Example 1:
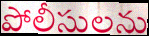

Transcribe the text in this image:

పోలీసులను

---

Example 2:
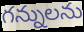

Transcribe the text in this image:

గన్నులను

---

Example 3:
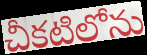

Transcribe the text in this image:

చీకటిలోను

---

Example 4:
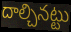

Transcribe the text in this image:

దాల్చినట్టు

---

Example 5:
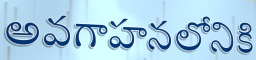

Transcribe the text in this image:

అవగాహనలోనికి